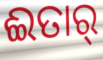
ଈତାର୍